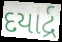
દયાર્દ્ર